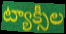
ట్యాక్సీల